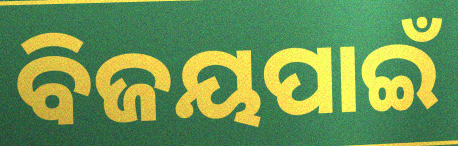
ବିଜୟପାଇଁ